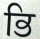
ਭਿ